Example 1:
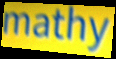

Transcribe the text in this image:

mathy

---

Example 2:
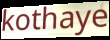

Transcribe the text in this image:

kothaye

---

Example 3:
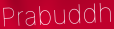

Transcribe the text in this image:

Prabuddh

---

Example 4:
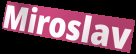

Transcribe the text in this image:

Miroslav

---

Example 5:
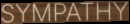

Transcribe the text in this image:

SYMPATHY